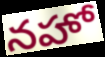
నహో